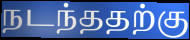
நடந்ததற்கு